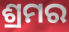
ଶ୍ରମର